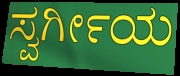
ಸ್ವರ್ಗೀಯ